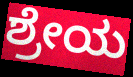
ಶ್ರೇಯ